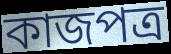
কাজপত্র